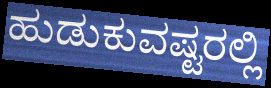
ಹುಡುಕುವಷ್ಟರಲ್ಲಿ